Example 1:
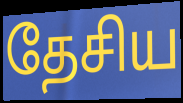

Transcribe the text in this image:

தேசிய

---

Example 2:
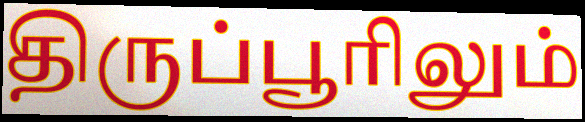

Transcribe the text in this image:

திருப்பூரிலும்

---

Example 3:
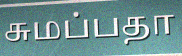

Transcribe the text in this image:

சுமப்பதா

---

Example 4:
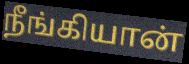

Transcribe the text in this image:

நீங்கியான்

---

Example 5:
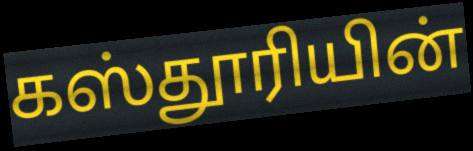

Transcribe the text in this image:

கஸ்தூரியின்